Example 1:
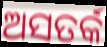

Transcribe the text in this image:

ଅସତର୍କ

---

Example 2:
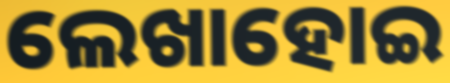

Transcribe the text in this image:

ଲେଖାହୋଇ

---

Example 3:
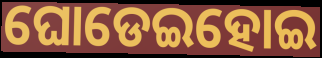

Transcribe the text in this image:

ଘୋଡେଇହୋଇ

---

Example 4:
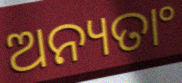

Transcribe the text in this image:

ଅନ୍ୟତାଂ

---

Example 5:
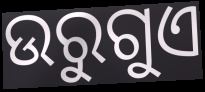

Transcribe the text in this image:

ଉରୁଗୁଏ